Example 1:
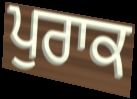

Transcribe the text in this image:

ਪੁਰਾਕ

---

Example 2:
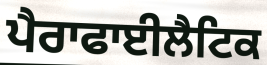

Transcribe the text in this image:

ਪੈਰਾਫਾਈਲੈਟਿਕ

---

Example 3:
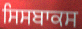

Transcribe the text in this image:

ਸਿਸਬਾਕਸ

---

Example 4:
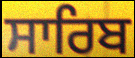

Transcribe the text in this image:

ਸਾਰਿਬ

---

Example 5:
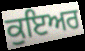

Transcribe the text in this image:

ਕੁਇਅਰ